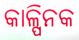
କାଳ୍ପିନକ